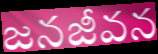
జనజీవన